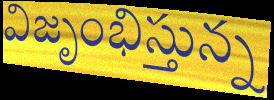
విజృంభిస్తున్న